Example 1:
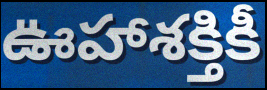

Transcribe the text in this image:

ఊహాశక్తికీ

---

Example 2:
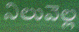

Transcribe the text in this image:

నిలువెల్ల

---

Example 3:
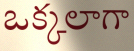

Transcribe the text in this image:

ఒక్కలాగా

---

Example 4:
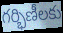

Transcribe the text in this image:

గర్భిణీలకు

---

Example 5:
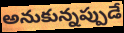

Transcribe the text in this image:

అనుకున్నప్పుడే